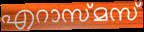
എറാസ്മസ്